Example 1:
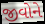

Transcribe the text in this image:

જીવોને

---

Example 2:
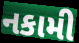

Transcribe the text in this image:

નકામી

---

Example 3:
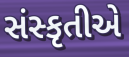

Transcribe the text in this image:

સંસ્કૃતીએ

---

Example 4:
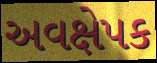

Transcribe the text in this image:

અવક્ષેપક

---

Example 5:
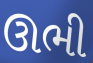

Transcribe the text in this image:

ઊભી